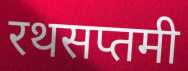
रथसप्तमी